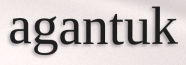
agantuk